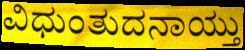
ವಿಧುಂತುದನಾಯ್ತು